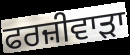
ਫਰਜ਼ੀਵਾੜਾ